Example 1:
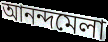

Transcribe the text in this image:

আনন্দমেলা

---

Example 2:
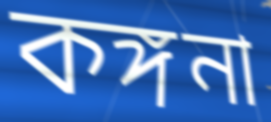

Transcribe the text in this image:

কঙ্গনা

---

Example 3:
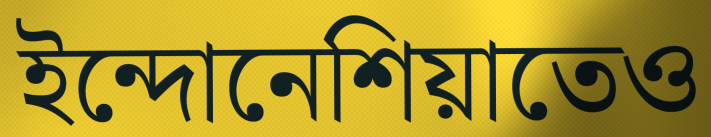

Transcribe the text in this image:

ইন্দোনেশিয়াতেও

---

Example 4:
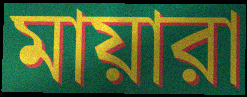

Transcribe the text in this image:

মায়ারা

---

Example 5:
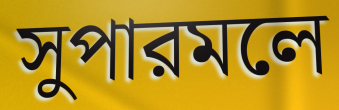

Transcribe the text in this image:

সুপারমলে